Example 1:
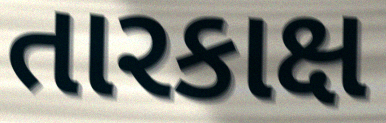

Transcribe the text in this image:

તારકાક્ષ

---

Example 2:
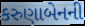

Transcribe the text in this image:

કરુણાબેનની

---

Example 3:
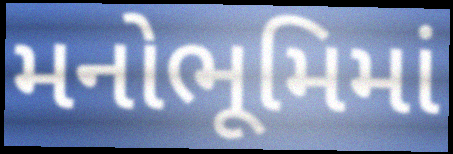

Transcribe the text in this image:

મનોભૂમિમાં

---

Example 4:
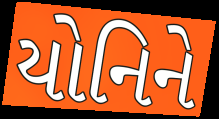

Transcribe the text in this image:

યોનિને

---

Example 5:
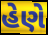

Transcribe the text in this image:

હેણે